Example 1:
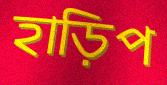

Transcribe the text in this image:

হাড়িপ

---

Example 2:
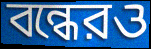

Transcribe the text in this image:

বন্ধেরও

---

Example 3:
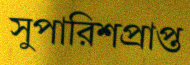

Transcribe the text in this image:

সুপারিশপ্রাপ্ত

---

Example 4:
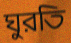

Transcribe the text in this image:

ঘুরতি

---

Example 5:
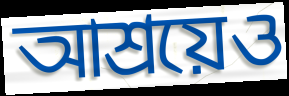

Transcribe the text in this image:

আশ্রয়েও